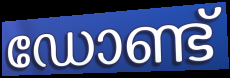
ഡോണ്ട്